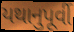
યથાનુપૂર્વી